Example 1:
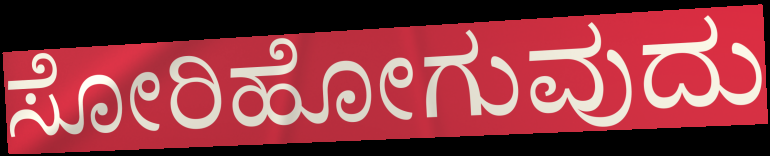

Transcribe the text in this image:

ಸೋರಿಹೋಗುವುದು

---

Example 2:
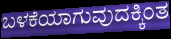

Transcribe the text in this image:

ಬಳಕೆಯಾಗುವುದಕ್ಕಿಂತ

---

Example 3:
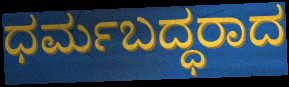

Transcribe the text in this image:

ಧರ್ಮಬದ್ಧರಾದ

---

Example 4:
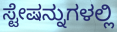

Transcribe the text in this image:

ಸ್ಟೇಷನ್ನುಗಳಲ್ಲಿ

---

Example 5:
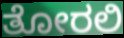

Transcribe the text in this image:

ತೋರಲಿ